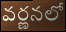
వర్ణనలో